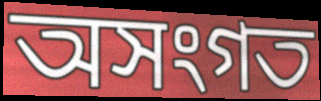
অসংগত